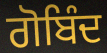
ਗੋਬਿੰਦ